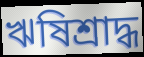
ঋষিশ্রাদ্ধ